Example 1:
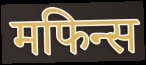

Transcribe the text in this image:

मफिन्स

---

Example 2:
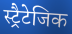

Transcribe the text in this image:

स्ट्रैटेजिक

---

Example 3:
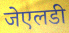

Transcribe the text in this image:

जेएलडी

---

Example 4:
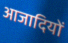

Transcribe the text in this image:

आजादियों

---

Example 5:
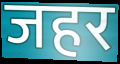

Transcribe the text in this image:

जहर